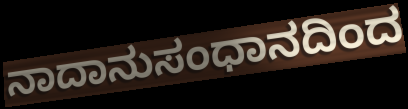
ನಾದಾನುಸಂಧಾನದಿಂದ